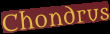
Chondrus